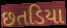
છતડિયા